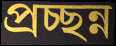
প্রচ্ছন্ন